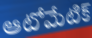
ఆటోమేటిక్